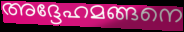
അദ്ദേഹമങ്ങനെ